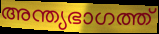
അന്ത്യഭാഗത്ത്